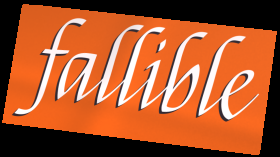
fallible